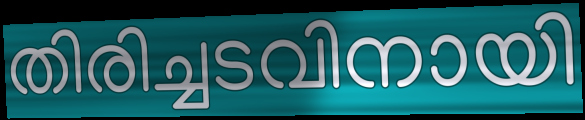
തിരിച്ചടവിനായി